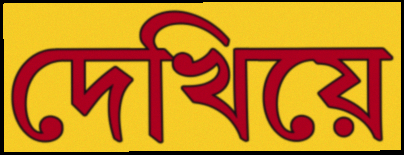
দেখিয়ে